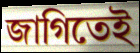
জাগিতেই